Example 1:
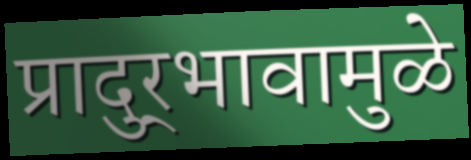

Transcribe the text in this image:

प्रादुर्भावामुळे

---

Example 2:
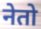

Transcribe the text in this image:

नेतो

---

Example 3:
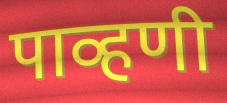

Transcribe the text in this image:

पाव्हणी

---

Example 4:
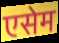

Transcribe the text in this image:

एसेम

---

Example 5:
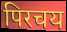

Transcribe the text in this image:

पिरचय